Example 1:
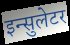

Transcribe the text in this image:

इन्सुलेटर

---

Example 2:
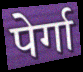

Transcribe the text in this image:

पेर्गा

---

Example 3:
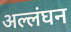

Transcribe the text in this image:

अल्लंघन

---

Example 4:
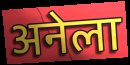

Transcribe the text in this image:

अनेला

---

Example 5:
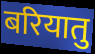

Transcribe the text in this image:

बरियातु